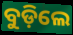
ବୁଡ଼ିଲେ